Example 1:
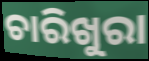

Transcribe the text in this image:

ଚାରିଖୁରା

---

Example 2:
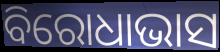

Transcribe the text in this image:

ବିରୋଧାଭାସ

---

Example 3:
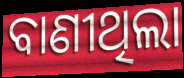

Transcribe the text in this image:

ବାଣୀଥିଲା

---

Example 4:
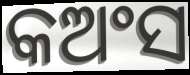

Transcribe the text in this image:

କଅଂସ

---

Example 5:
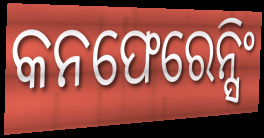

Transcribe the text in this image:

କନଫେରେନ୍ସିଂ